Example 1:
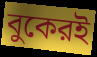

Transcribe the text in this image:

বুকেরই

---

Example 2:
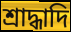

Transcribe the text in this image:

শ্রাদ্ধাদি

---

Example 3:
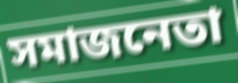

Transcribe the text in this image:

সমাজনেতা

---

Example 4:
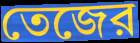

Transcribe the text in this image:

তেজের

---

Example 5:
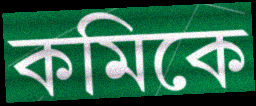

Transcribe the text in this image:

কমিকে